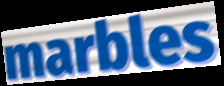
marbles